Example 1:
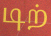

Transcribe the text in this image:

டிற்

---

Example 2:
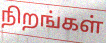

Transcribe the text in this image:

நிறங்கள்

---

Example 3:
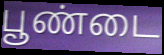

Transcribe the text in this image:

பூண்டை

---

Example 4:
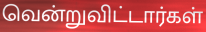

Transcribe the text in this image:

வென்றுவிட்டார்கள்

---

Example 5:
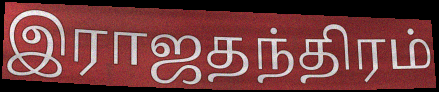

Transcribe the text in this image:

இராஜதந்திரம்